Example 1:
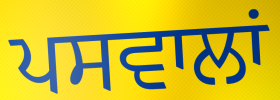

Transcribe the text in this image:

ਪਸਵਾਲਾਂ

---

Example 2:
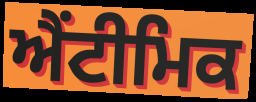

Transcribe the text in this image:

ਐਂਟੀਮਿਕ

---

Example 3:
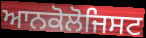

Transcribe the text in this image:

ਆਨਕੋਲੋਜਿਸਟ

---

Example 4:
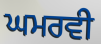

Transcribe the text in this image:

ਘਮਰਵੀ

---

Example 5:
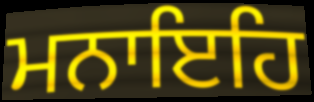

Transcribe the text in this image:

ਮਨਾਇਹਿ